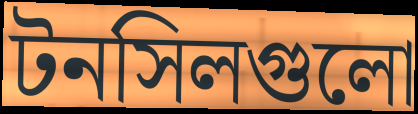
টনসিলগুলো